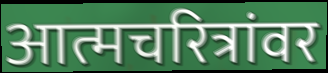
आत्मचरित्रांवर